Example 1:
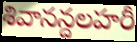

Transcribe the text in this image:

శివానన్దలహరీ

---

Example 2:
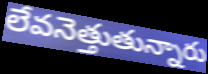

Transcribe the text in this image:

లేవనెత్తుతున్నారు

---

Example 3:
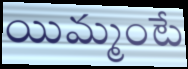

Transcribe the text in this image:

యిమ్మంటే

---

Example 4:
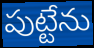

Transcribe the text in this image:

పుట్టేను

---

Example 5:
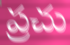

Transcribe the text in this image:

ప్రచు